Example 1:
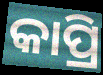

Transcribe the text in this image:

କାପ୍ରି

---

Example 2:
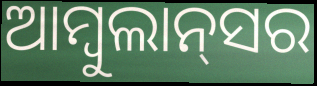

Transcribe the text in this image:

ଆମ୍ବୁଲାନ୍‌ସର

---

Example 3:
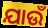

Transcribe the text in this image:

ଯାଉଁ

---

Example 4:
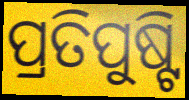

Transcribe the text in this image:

ପ୍ରତିପୁଷ୍ଟି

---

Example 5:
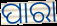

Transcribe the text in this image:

ପାରା